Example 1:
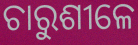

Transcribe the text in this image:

ଚାରୁଶୀଳେ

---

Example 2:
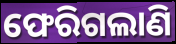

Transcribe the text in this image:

ଫେରିଗଲାଣି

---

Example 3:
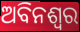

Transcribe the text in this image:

ଅବିନଶ୍ଵର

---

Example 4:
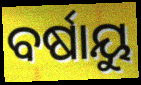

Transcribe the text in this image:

ବର୍ଷାୟୁ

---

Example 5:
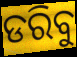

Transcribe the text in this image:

ଡରିବୁ